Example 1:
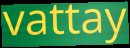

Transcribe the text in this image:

vattay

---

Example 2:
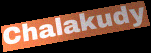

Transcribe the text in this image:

Chalakudy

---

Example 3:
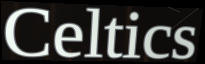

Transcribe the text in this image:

Celtics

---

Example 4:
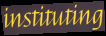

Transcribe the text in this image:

instituting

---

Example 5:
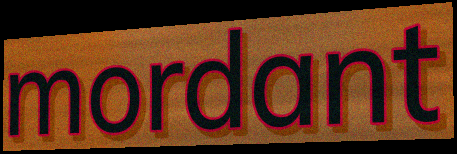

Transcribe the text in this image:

mordant